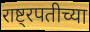
राष्ट्रपतीच्या